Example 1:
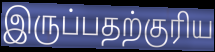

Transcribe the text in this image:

இருப்பதற்குரிய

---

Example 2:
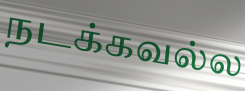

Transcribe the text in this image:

நடக்கவல்ல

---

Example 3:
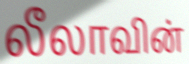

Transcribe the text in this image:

லீலாவின்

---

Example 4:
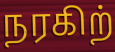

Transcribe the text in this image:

நரகிற்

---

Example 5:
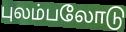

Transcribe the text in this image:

புலம்பலோடு